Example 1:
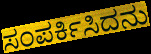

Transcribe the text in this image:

ಸಂಪರ್ಕಿಸಿದನು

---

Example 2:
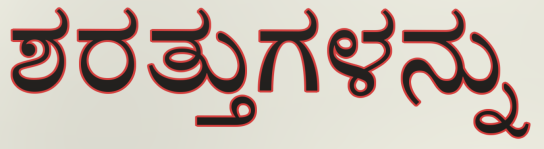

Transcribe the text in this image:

ಶರತ್ತುಗಳನ್ನು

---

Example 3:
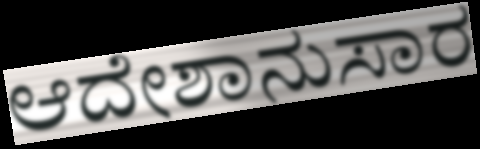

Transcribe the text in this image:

ಆದೇಶಾನುಸಾರ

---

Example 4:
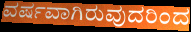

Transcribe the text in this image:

ವರ್ಷವಾಗಿರುವುದರಿಂದ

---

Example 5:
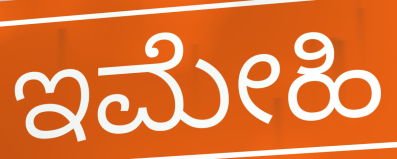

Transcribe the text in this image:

ಇಮೇಹಿ